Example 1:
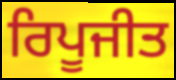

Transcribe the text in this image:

ਰਿਪੂਜੀਤ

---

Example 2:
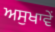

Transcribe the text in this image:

ਅਸੁਖਾਵੇਂ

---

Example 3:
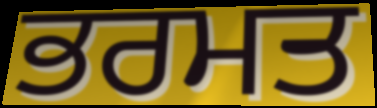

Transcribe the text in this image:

ਭਰਮਤ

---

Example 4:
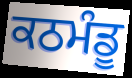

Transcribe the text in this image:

ਕਠਮੰਡੂ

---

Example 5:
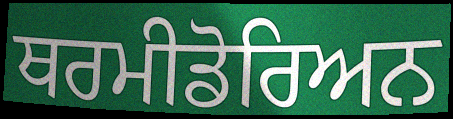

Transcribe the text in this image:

ਥਰਮੀਡੋਰਿਅਨ